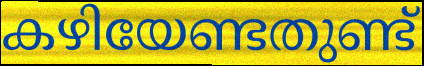
കഴിയേണ്ടതുണ്ട്